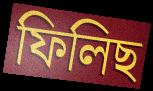
ফিলিছ